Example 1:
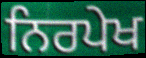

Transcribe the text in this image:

ਨਿਰਪੇਖ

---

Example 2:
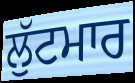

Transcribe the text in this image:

ਲੁੱਟਮਾਰ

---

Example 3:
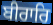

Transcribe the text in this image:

ਬੀਰਾਰਿ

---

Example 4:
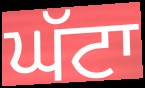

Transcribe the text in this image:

ਘੱਟਾ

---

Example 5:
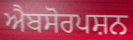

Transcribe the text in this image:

ਐਬਸੋਰਪਸ਼ਨ